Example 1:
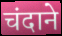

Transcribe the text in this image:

चंदाने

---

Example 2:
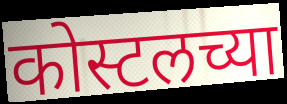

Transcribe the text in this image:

कोस्टलच्या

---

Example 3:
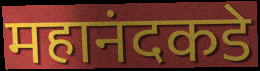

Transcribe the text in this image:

महानंदकडे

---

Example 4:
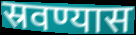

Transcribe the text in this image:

स्रवण्यास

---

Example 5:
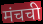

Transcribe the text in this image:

मंचची